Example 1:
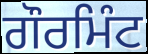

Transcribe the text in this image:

ਗੌਰਮਿੰਟ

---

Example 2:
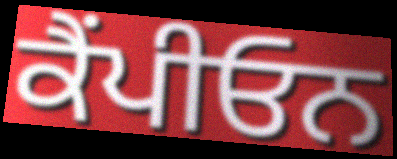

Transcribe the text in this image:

ਕੈਂਪੀਓਨ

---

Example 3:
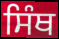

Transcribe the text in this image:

ਸਿੰਥ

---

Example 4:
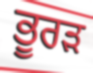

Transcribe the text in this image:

ਭੂਰੜ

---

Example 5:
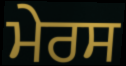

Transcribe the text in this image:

ਮੇਰਸ